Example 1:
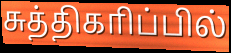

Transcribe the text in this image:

சுத்திகரிப்பில்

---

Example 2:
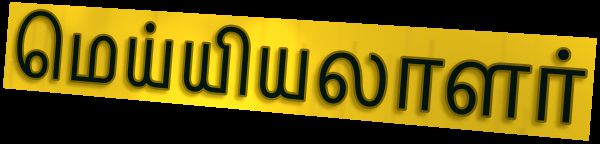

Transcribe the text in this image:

மெய்யியலாளர்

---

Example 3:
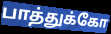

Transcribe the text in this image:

பாத்துக்கோ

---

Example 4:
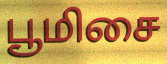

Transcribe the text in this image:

பூமிசை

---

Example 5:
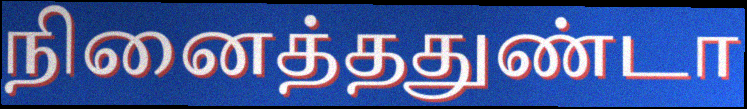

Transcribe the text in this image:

நினைத்ததுண்டா